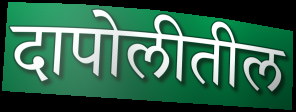
दापोलीतील